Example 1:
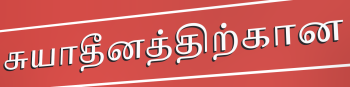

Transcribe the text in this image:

சுயாதீனத்திற்கான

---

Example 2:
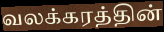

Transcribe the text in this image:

வலக்கரத்தின்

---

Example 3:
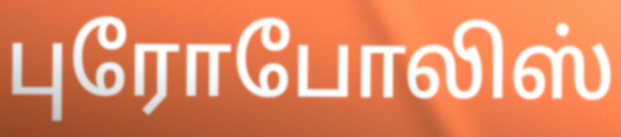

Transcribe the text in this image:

புரோபோலிஸ்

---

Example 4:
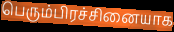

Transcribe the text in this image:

பெரும்பிரச்சினையாக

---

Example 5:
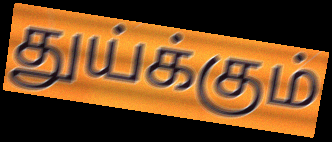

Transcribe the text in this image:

துய்க்கும்